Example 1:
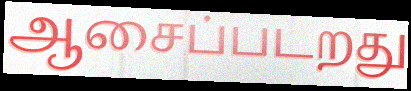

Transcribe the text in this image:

ஆசைப்படறது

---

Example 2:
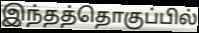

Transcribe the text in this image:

இந்தத்தொகுப்பில்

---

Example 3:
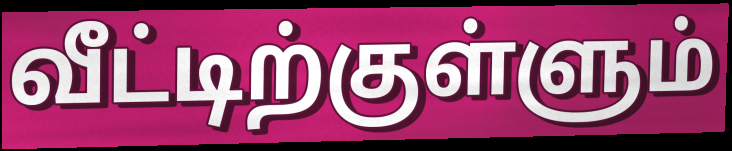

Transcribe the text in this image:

வீட்டிற்குள்ளும்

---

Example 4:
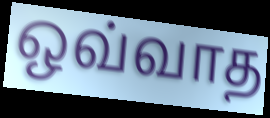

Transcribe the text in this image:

ஒவ்வாத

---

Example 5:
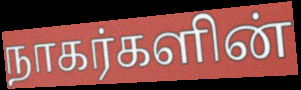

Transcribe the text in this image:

நாகர்களின்